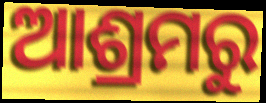
ଆଶ୍ରମରୁ